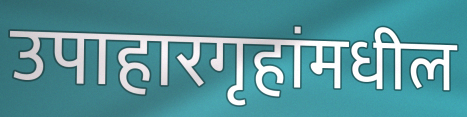
उपाहारगृहांमधील